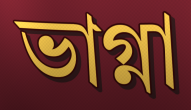
ভাগ্না